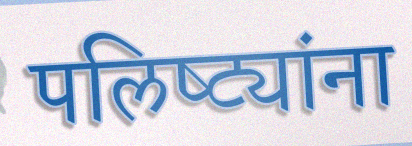
पलिष्ट्यांना